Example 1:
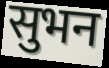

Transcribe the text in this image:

सुभन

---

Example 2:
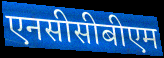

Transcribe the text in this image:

एनसीसीबीएम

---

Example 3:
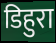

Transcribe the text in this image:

डिहुरा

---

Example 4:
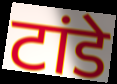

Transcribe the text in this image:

टांडे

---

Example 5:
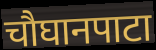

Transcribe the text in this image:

चौघानपाटा